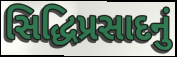
સિદ્ધિપ્રસાદનું